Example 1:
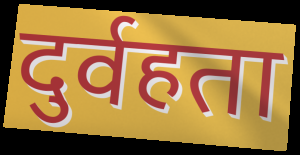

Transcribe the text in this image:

दुर्वहता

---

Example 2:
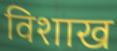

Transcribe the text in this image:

विशाख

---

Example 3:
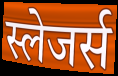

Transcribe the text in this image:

स्लेजर्स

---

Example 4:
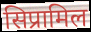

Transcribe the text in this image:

सिप्रामिल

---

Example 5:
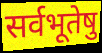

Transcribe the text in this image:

सर्वभूतेषु